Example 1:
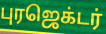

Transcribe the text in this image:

புரஜெக்டர்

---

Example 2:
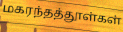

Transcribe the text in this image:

மகரந்தத்தூள்கள்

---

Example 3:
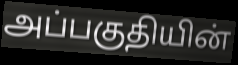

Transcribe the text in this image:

அப்பகுதியின்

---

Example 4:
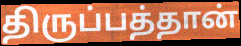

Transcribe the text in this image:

திருப்பத்தான்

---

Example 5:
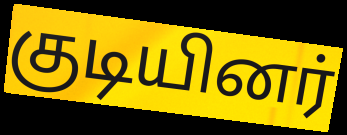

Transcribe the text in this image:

குடியினர்